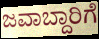
ಜವಾಬ್ದಾರಿಗೆ